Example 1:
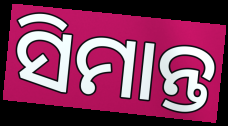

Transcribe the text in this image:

ସିମାନ୍ତ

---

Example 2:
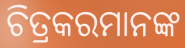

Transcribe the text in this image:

ଚିତ୍ରକରମାନଙ୍କ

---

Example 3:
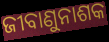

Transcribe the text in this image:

ଜୀବାଣୁନାଶକ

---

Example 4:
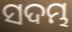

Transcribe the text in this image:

ସଦମ୍ଭ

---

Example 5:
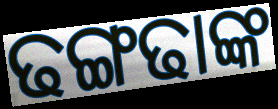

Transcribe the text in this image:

ଢଙ୍ଗଢାଙ୍କ